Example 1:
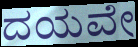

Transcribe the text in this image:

ದಯವೇ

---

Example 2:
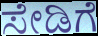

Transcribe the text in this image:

ಸೇಡಿಗೆ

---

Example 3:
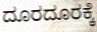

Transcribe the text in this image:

ದೂರದೂರಕ್ಕೆ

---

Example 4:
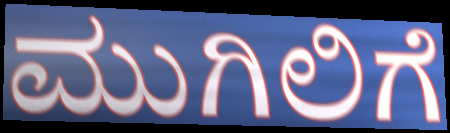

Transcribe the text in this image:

ಮುಗಿಲಿಗೆ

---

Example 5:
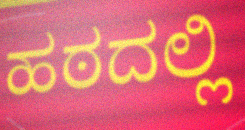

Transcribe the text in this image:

ಹಠದಲ್ಲಿ